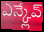
ఎన్క్లేవ్